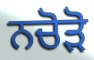
ਨਚੋੜੋ